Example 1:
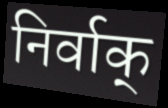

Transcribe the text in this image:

निर्वाक्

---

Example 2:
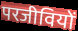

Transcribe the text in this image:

परजीवियों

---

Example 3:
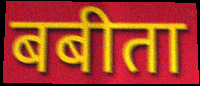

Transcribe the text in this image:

बबीता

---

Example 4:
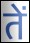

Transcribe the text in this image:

तें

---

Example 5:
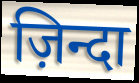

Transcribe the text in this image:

ज़िन्दा